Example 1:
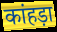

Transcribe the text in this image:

कांहड़ा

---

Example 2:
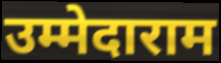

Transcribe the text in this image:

उम्मेदाराम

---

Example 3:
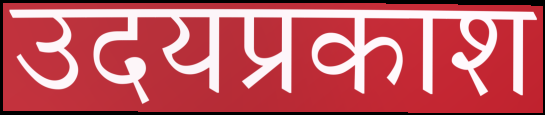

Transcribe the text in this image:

उदयप्रकाश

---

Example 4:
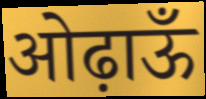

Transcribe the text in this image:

ओढ़ाऊँ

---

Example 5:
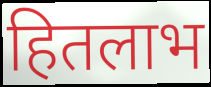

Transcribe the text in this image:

हितलाभ